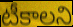
టీకాలని